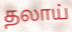
தலாய்